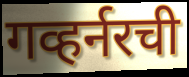
गव्हर्नरची